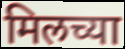
मिलच्या